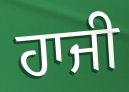
ਹਾਜੀ